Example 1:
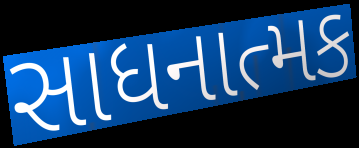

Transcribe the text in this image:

સાધનાત્મક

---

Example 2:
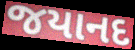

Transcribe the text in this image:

જયાનદ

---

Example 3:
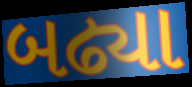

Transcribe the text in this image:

બઢ્યા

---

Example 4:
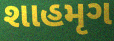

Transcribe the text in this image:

શાહમૃગ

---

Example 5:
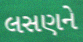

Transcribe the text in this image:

લસણને